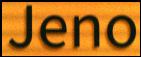
Jeno